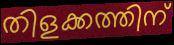
തിളക്കത്തിന്